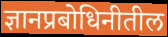
ज्ञानप्रबोधिनीतील